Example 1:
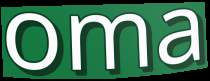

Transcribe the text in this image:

oma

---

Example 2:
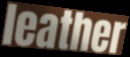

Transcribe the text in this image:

leather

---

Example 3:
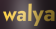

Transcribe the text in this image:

walya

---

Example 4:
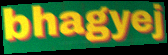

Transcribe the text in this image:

bhagyej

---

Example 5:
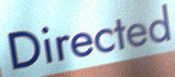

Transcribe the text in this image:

Directed